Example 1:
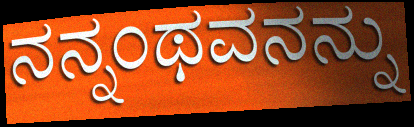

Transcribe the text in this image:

ನನ್ನಂಥವನನ್ನು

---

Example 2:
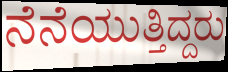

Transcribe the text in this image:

ನೆನೆಯುತ್ತಿದ್ದರು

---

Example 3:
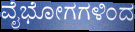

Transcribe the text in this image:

ವೈಭೋಗಗಳಿಂದ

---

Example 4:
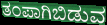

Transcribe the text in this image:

ತಂಪಾಗಿಬಿಡುವ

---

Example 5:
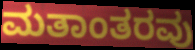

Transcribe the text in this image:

ಮತಾಂತರವು